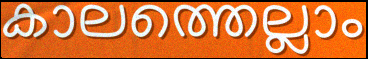
കാലത്തെല്ലാം